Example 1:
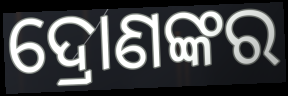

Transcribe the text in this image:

ଦ୍ରୋଣଙ୍କର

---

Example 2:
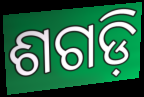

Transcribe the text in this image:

ଶଗଡ଼ି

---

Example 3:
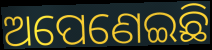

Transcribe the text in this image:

ଅପେଣେଇଛି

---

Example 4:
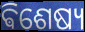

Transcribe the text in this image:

ଵିଶେଷ୍ୟ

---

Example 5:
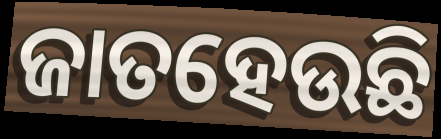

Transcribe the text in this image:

ଜାତହେଉଛି